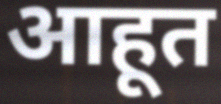
आहूत